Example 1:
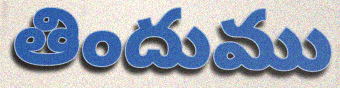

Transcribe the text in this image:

తిందుము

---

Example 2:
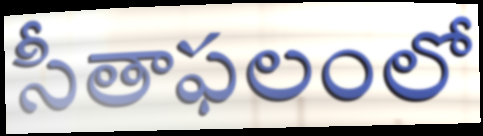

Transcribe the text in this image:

సీతాఫలంలో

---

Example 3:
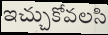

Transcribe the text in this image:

ఇచ్చుకోవలసి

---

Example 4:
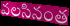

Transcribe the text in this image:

వలసినంత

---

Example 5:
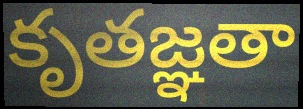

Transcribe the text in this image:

కృతజ్ఞతా